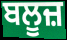
ਬਲੂਜ਼